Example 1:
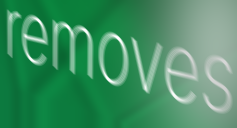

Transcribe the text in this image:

removes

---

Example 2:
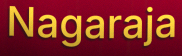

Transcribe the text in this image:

Nagaraja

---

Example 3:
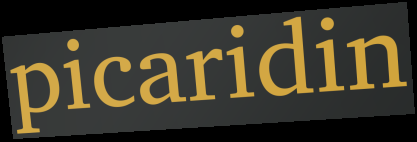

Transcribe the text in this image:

picaridin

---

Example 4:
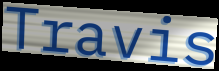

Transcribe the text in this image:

Travis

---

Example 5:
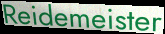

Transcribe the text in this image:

Reidemeister